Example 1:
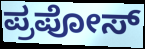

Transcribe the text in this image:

ಪ್ರಪೋಸ್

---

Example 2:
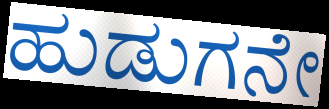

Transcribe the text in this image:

ಹುಡುಗನೇ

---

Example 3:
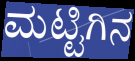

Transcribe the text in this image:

ಮಟ್ಟಿಗಿನ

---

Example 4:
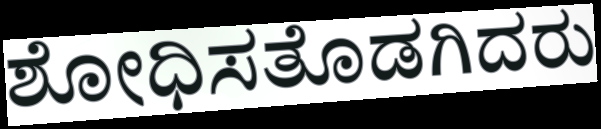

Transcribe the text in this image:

ಶೋಧಿಸತೊಡಗಿದರು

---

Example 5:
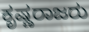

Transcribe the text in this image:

ಕೃಷ್ಣರಾಜರು